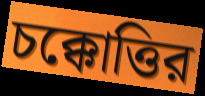
চক্কোত্তির